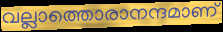
വല്ലാത്തൊരാനന്ദമാണ്